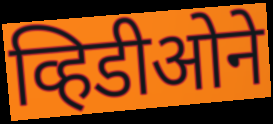
व्हिडीओने